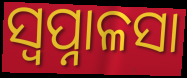
ସ୍ୱପ୍ନାଳସା